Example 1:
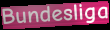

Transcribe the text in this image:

Bundesliga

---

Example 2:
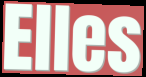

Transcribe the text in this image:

Elles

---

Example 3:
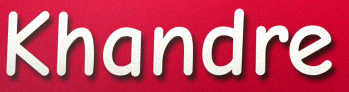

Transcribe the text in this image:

Khandre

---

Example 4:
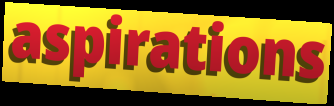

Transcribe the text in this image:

aspirations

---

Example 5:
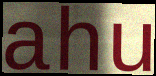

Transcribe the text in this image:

ahu